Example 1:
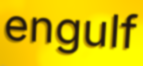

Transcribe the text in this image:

engulf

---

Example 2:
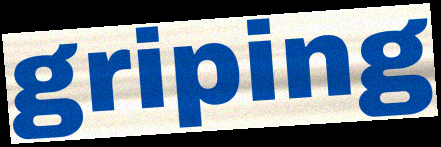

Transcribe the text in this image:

griping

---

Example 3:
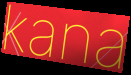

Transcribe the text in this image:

kana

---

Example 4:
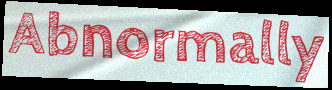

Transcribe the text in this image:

Abnormally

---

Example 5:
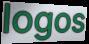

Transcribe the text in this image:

logos